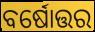
ବର୍ଷୋତ୍ତର